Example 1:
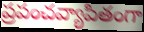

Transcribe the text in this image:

ప్రపంచవ్యాపితంగా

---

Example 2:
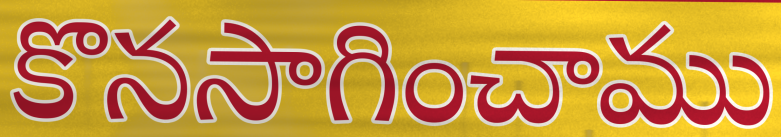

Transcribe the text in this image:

కొనసాగించాము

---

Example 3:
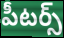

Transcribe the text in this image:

పీటర్స్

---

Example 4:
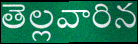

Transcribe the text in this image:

తెల్లవారిన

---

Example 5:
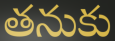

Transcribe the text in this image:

తనుకు